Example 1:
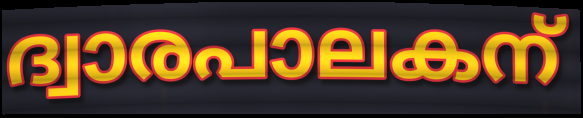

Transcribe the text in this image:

ദ്വാരപാലകന്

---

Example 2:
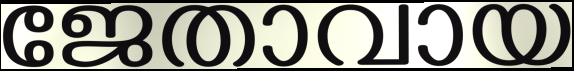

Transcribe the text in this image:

ജേതാവായ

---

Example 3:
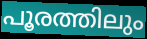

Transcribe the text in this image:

പൂരത്തിലും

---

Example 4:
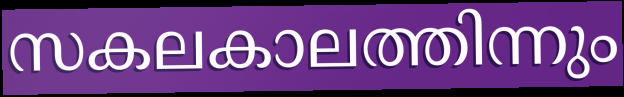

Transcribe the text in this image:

സകലകാലത്തിന്നും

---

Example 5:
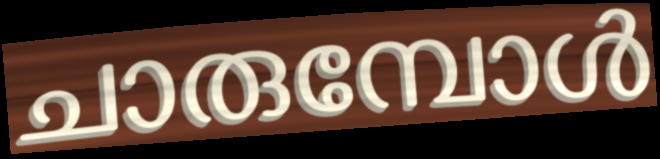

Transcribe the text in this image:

ചാരുമ്പോൾ